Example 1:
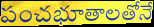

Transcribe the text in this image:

పంచభూతాలతోనే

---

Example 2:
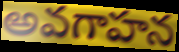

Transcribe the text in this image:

అవగాహన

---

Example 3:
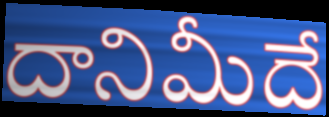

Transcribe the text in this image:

దానిమీదే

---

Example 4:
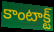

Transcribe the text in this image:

కాంటాక్ట్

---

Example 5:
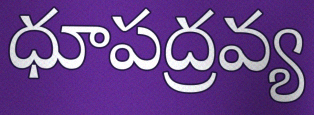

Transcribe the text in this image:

ధూపద్రవ్య